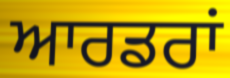
ਆਰਡਰਾਂ